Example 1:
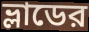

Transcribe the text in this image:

ভ্লাডের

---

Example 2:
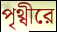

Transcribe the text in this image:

পৃথ্বীরে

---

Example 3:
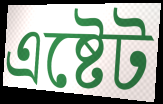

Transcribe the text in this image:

এষ্টেট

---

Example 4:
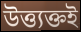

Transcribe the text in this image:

উত্ত্যক্তই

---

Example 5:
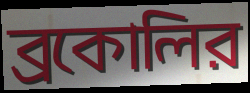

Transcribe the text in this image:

ব্রকোলির